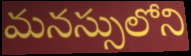
మనస్సులోని